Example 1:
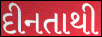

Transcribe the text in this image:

દીનતાથી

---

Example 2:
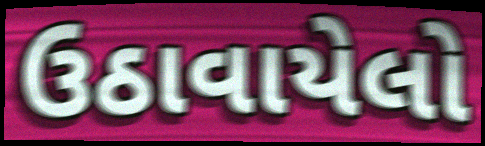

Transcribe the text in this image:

ઉઠાવાયેલો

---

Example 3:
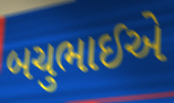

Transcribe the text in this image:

બચુભાઈએ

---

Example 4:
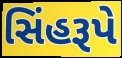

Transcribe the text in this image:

સિંહરૂપે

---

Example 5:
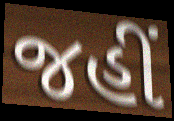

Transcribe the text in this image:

જહીં